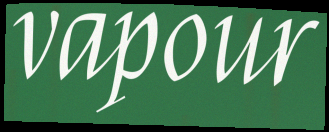
vapour